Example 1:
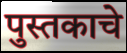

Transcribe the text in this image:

पुस्तकाचे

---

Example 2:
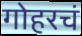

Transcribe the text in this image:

गोहरचं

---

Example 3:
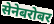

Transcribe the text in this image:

सेनेबरोबर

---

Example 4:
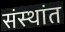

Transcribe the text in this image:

संस्थांत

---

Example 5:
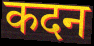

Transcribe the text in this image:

कदन